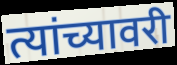
त्यांच्यावरी